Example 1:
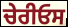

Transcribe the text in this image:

ਚੇਰੀਓਸ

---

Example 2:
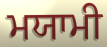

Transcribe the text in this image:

ਮਯਾਮੀ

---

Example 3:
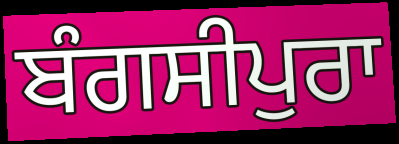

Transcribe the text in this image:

ਬੰਗਸੀਪੁਰਾ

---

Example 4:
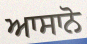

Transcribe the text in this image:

ਆਸਾਨੋ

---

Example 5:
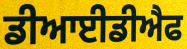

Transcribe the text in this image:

ਡੀਆਈਡੀਐਫ